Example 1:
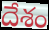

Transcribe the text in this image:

దేశం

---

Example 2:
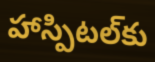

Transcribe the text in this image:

హాస్పిటల్‌కు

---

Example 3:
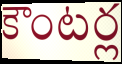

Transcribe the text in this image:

కౌంటర్ల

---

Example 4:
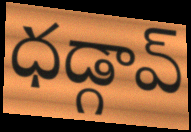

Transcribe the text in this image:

ధడ్గావ్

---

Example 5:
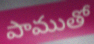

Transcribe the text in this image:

పాముతో